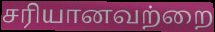
சரியானவற்றை